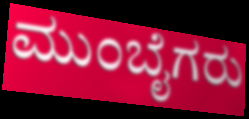
ಮುಂಬೈಗರು